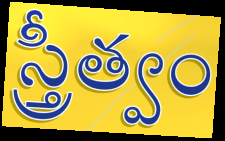
స్త్రీత్వం